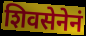
शिवसेनेनं